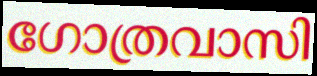
ഗോത്രവാസി